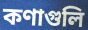
কণাগুলি